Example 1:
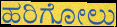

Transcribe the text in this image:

ಹರಿಗೋಲು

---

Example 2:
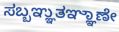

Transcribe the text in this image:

ಸಬ್ಬಞ್ಞುತಞ್ಞಾಣೇ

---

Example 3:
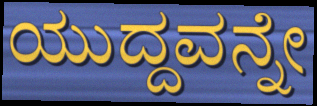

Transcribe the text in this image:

ಯುದ್ದವನ್ನೇ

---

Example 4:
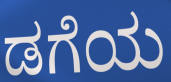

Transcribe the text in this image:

ಡಗೆಯ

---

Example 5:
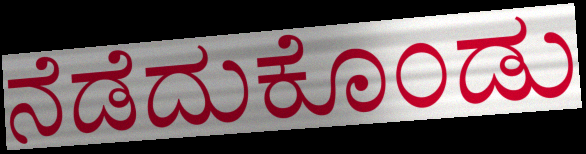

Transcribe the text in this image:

ನೆಡೆದುಕೊಂಡು